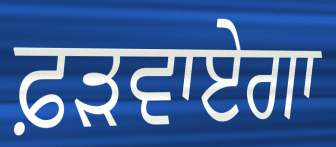
ਫ਼ੜਵਾਏਗਾ